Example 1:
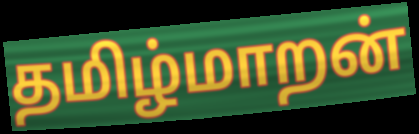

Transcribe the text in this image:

தமிழ்மாறன்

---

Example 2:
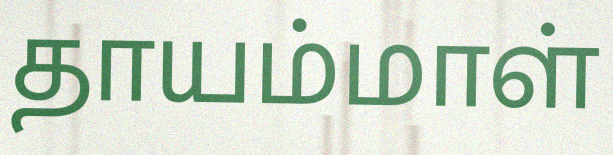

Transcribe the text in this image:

தாயம்மாள்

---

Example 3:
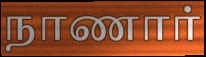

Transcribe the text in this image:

நாணார்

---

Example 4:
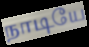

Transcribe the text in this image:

நாடியே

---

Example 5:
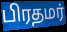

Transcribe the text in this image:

பிரதமர்